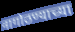
नागोठण्याच्या